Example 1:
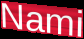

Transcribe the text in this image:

Nami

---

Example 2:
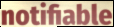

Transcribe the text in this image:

notifiable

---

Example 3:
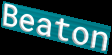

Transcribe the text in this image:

Beaton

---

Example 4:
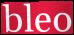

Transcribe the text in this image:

bleo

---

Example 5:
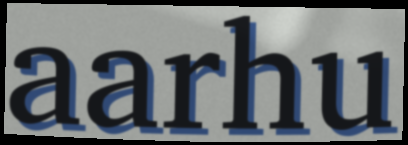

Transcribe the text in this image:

aarhu